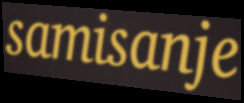
samisanje